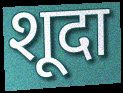
शूदा